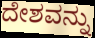
ದೇಶವನ್ನು